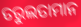
ତରୁଲତାମାନ